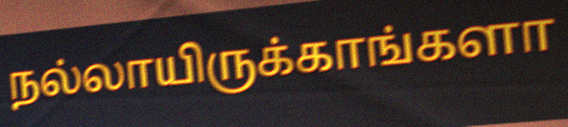
நல்லாயிருக்காங்களா